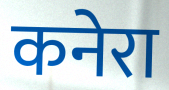
कनेरा